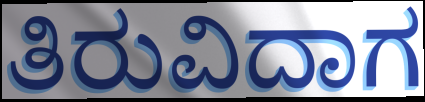
ತಿರುವಿದಾಗ